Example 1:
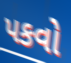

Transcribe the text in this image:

પકવો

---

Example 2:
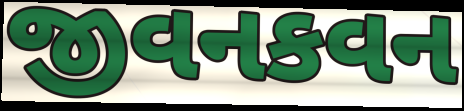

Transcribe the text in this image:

જીવનકવન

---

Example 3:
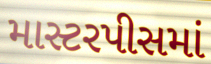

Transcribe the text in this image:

માસ્ટરપીસમાં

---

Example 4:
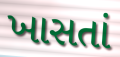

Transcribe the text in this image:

ખાસતાં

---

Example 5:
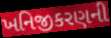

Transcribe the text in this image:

ખનિજીકરણની